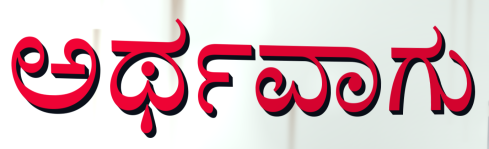
ಅರ್ಥವಾಗು